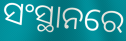
ସଂସ୍ଥାନରେ